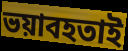
ভয়াবহতাই